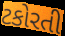
ટકોરતી